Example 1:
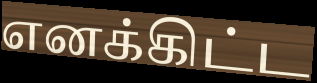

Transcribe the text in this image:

எனக்கிட்ட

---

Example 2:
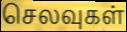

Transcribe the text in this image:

செலவுகள்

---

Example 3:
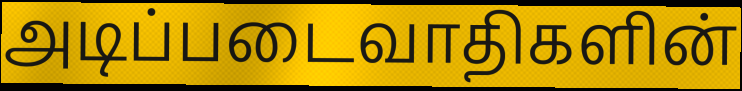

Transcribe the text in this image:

அடிப்படைவாதிகளின்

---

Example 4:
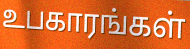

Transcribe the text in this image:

உபகாரங்கள்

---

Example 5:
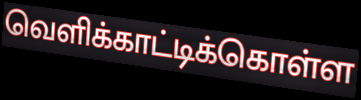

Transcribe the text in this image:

வெளிக்காட்டிக்கொள்ள